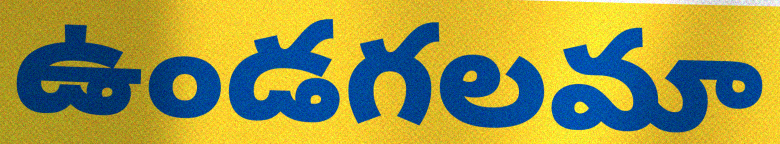
ఉండగలమా